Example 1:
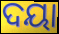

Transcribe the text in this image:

ଦୟା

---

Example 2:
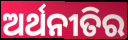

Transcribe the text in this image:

ଅର୍ଥନୀତିର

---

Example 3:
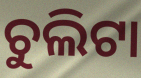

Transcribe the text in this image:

ଚୁଲିଟା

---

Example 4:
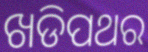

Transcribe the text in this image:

ଖଡିପଥର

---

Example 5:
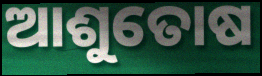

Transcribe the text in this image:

ଆଶୁତୋଷ